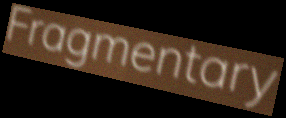
Fragmentary